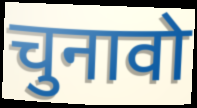
चुनावो